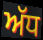
ਅੱਧ